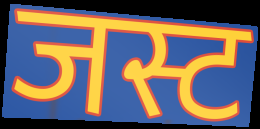
जस्ट